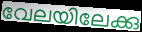
വേലയിലേക്കു